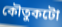
কৌতুকটো